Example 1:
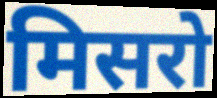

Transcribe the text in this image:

मिसरो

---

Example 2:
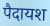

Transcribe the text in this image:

पैदायश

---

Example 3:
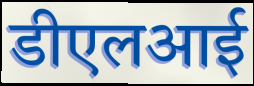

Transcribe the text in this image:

डीएलआई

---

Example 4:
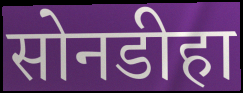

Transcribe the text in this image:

सोनडीहा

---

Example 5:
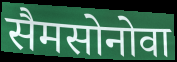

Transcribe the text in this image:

सैमसोनोवा